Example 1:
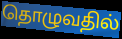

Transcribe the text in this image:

தொழுவதில்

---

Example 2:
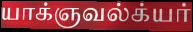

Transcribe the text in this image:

யாக்ஞவல்க்யர்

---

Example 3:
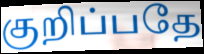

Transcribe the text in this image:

குறிப்பதே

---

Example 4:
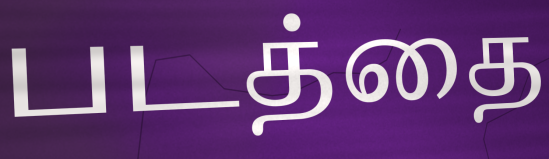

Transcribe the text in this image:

படத்தை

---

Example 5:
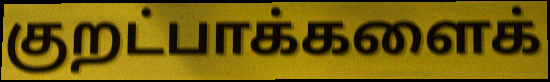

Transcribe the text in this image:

குறட்பாக்களைக்